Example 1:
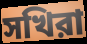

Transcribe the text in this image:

সখিরা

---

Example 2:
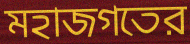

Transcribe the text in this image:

মহাজগতের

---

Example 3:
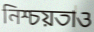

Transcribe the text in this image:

নিশ্চয়তাও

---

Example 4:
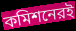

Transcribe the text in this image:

কমিশনেরই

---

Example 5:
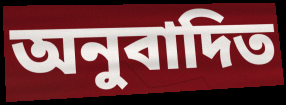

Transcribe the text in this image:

অনুবাদিত